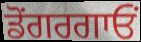
ਡੋਂਗਰਗਾਓਂ